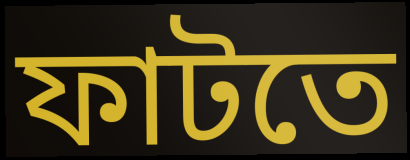
ফাটতে